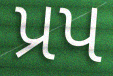
પ્રપ